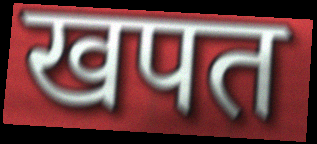
खपत